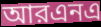
আরএনএ